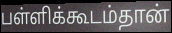
பள்ளிக்கூடம்தான்